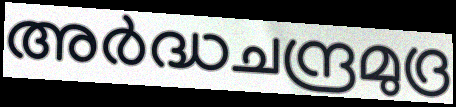
അർദ്ധചന്ദ്രമുദ്ര